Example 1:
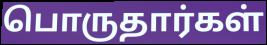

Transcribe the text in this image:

பொருதார்கள்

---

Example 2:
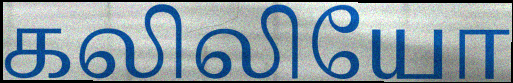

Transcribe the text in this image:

கலிலியோ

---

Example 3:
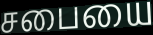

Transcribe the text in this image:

சபையை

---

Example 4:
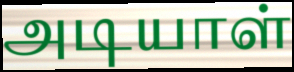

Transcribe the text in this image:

அடியாள்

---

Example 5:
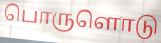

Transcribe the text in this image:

பொருளொடு